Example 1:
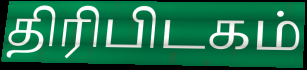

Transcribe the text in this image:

திரிபிடகம்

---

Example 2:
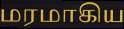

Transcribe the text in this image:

மரமாகிய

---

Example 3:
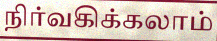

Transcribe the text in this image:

நிர்வகிக்கலாம்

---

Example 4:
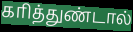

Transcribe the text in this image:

கரித்துண்டால்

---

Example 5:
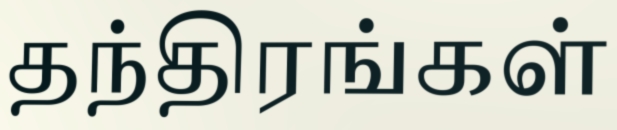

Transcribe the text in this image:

தந்திரங்கள்